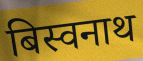
बिस्वनाथ